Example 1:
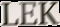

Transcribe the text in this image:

LEK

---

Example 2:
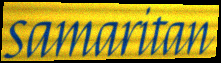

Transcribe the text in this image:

samaritan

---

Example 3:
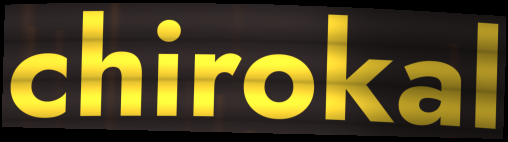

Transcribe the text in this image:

chirokal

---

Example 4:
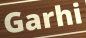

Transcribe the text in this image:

Garhi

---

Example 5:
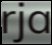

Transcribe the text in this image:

rja